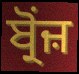
ਬ੍ਰੋਂਜ਼